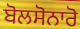
ਬੋਲਸੋਨਾਰੋ